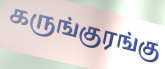
கருங்குரங்கு